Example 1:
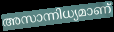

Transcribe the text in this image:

അസാന്നിധ്യമാണ്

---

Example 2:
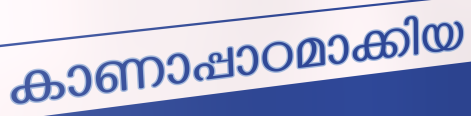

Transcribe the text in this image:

കാണാപ്പാഠമാക്കിയ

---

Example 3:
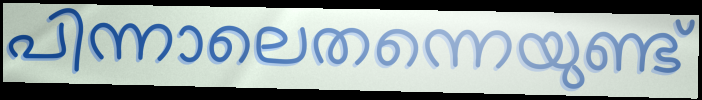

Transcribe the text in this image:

പിന്നാലെതന്നെയുണ്ട്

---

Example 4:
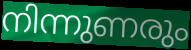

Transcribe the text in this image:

നിന്നുണരും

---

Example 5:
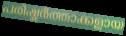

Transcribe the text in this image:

പരിഷ്കർത്താക്കളായ